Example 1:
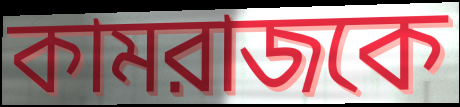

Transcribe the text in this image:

কামরাজকে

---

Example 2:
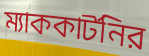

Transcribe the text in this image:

ম্যাককার্টনির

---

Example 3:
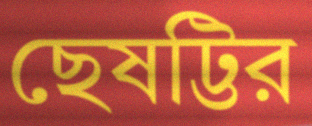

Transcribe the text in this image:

ছেষট্টির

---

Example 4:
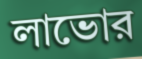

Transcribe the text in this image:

লাভোর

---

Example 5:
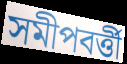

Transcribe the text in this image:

সমীপবর্ত্তী